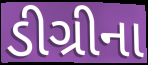
ડીગ્રીના